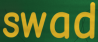
swad